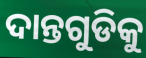
ଦାନ୍ତଗୁଡିକୁ